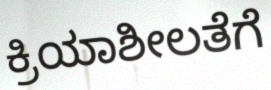
ಕ್ರಿಯಾಶೀಲತೆಗೆ